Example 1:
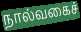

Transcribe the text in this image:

நால்வகைச்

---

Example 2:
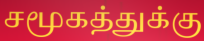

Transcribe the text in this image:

சமூகத்துக்கு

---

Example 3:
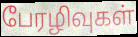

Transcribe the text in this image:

பேரழிவுகள்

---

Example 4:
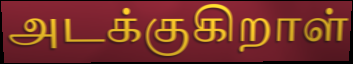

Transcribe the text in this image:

அடக்குகிறாள்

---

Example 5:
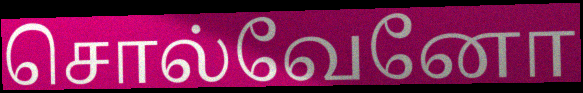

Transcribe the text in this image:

சொல்வேனோ